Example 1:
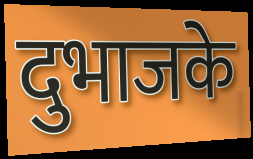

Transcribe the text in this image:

दुभाजके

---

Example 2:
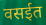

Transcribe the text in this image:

वसईत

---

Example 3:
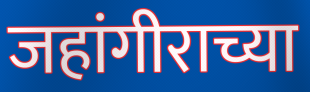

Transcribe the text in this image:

जहांगीराच्या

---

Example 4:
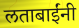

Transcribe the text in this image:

लताबाईंनी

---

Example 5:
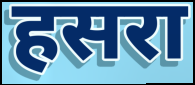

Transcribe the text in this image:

हसरा